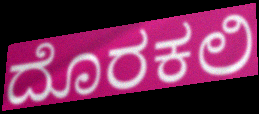
ದೊರಕಲಿ